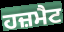
ਹਜ਼ਮੈਟ